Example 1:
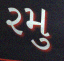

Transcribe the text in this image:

રમુ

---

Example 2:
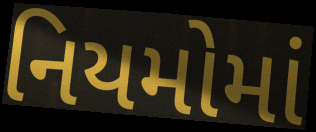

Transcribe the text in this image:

નિયમોમાં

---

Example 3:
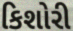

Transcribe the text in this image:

કિશોરી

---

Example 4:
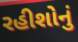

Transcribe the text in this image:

રહીશોનું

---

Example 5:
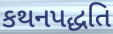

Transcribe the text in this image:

કથનપદ્ધતિ